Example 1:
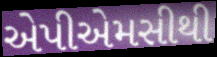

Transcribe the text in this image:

એપીએમસીથી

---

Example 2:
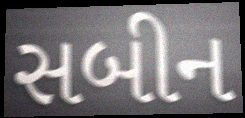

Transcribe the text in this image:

સબીન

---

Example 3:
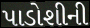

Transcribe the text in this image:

પાડોશીની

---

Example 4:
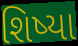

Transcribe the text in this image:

શિષ્યા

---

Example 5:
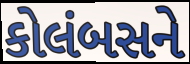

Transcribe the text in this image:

કોલંબસને